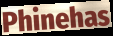
Phinehas